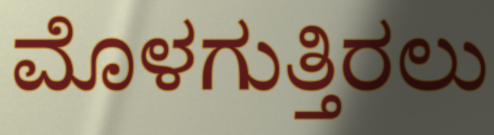
ಮೊಳಗುತ್ತಿರಲು